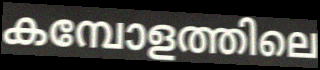
കമ്പോളത്തിലെ